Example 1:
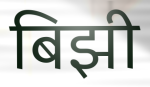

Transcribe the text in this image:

बिझी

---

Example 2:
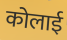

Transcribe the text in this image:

कोलाई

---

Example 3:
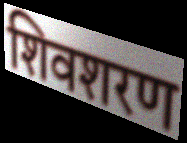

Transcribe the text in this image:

शिवशरण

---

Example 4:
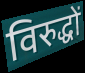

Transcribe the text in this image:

विरुद्धों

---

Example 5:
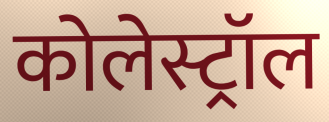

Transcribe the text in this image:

कोलेस्‍ट्रॉल